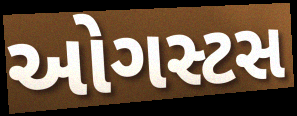
ઓગસ્ટસ